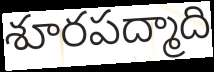
శూరపద్మాది